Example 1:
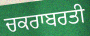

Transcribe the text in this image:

ਚਕਰਾਬਰਤੀ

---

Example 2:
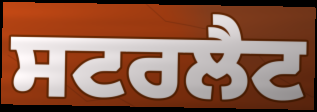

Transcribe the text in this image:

ਸਟਰਲੈਟ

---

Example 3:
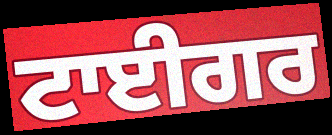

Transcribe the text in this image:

ਟਾਈਗਰ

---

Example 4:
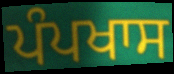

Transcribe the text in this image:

ਪੰਪਖਾਸ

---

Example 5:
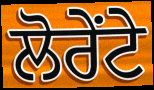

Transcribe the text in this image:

ਲੋਰੇਂਟੇ